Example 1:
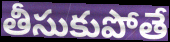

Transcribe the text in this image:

తీసుకుపోతే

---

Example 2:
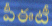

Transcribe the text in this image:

పీఈటీ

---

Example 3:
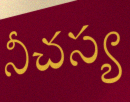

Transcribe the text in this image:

నీచస్య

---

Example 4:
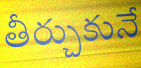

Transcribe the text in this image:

తీర్చుకునే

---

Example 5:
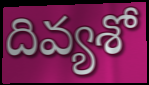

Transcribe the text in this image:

దివ్యశో